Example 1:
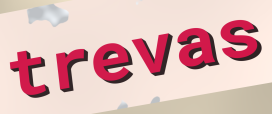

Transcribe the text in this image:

trevas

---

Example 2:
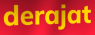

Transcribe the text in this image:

derajat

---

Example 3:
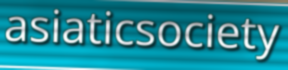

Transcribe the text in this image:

asiaticsociety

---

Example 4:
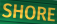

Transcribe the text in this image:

SHORE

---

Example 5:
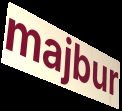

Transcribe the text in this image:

majbur